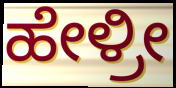
ಹೇಳ್ರೀ